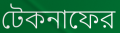
টেকনাফের